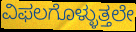
ವಿಫಲಗೊಳ್ಳುತ್ತಲೇ